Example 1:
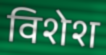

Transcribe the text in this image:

विशेश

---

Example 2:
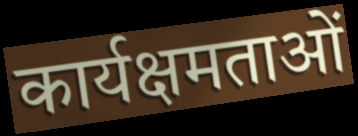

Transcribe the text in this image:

कार्यक्षमताओं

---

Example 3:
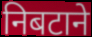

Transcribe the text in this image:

निबटाने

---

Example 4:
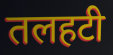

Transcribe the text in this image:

तलहटी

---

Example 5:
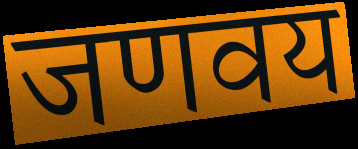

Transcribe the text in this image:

जणवय